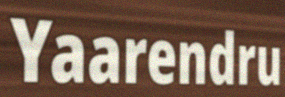
Yaarendru